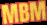
MBM